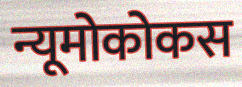
न्यूमोकोकस